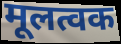
मूलत्वक